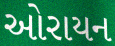
ઓરાયન